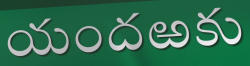
యందఱకు